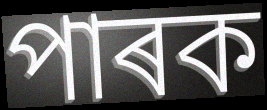
পাৰক